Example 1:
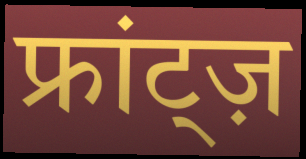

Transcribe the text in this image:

फ्रांट्ज़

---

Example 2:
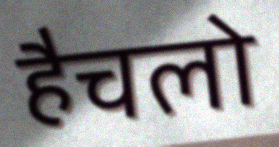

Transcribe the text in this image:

हैचलो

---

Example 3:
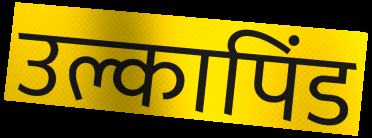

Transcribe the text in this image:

उल्‍कापिंड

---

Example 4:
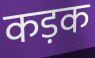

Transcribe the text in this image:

कड़क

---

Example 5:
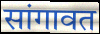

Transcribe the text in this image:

सांगावत